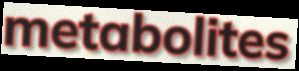
metabolites